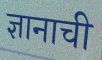
ज्ञानाची